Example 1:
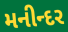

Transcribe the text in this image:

મનીન્દર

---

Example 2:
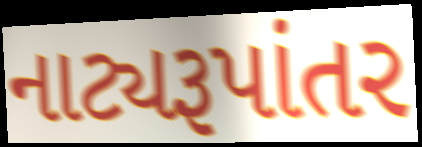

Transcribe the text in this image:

નાટ્યરૂપાંતર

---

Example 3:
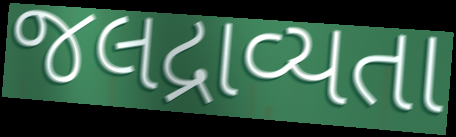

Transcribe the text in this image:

જલદ્રાવ્યતા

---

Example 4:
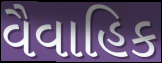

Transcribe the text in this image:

વૈવાહિક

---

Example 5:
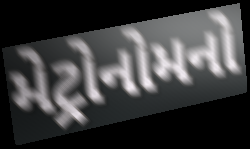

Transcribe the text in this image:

મેટ્રોનોમનો